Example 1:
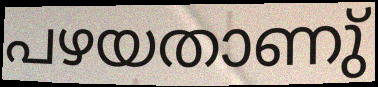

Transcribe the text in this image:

പഴയതാണു്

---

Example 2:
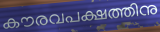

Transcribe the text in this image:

കൗരവപക്ഷത്തിനു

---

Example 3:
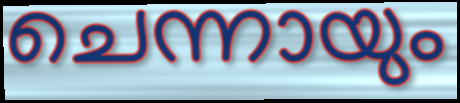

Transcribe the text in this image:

ചെന്നായും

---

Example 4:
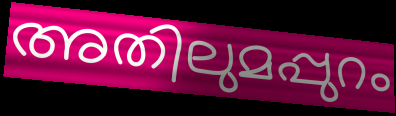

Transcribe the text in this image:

അതിലുമപ്പുറം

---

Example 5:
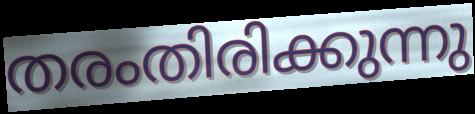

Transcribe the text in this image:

തരംതിരിക്കുന്നു